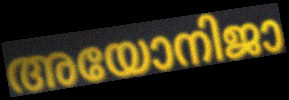
അയോനിജാ